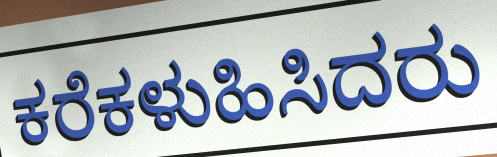
ಕರೆಕಳುಹಿಸಿದರು